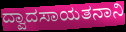
ದ್ವಾದಸಾಯತನಾನಿ